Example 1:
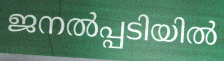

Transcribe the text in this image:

ജനൽപ്പടിയിൽ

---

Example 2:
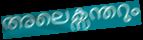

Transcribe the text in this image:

അലെക്സന്തറും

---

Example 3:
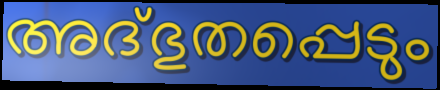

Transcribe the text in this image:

അദ്ഭുതപ്പെടും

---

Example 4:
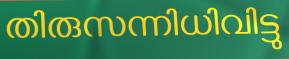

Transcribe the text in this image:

തിരുസന്നിധിവിട്ടു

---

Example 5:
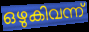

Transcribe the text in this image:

ഒഴുകിവന്ന്